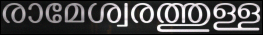
രാമേശ്വരത്തുള്ള